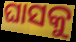
ଘାସକୁ